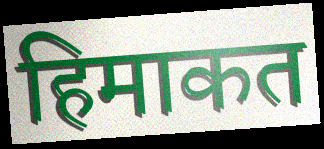
हिमाकत